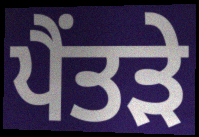
ਪੈਂਤੜੇ